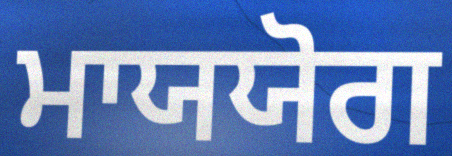
ਮਾਯਯੋਗ